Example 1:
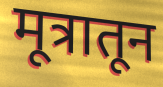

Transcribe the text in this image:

मूत्रातून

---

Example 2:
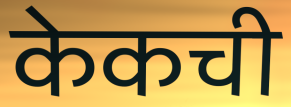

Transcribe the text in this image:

केकची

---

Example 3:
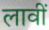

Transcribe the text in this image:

लावीं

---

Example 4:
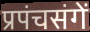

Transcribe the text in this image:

प्रपंचसंगें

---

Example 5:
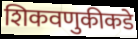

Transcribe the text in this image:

शिकवणुकीकडे